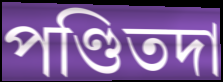
পণ্ডিতদা